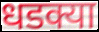
धडक्या